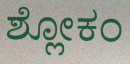
ಶ್ಲೋಕಂ